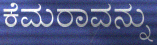
ಕೆಮರಾವನ್ನು